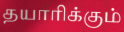
தயாரிக்கும்